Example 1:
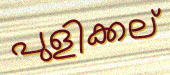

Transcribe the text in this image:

പുളിക്കല്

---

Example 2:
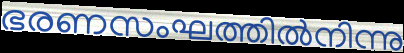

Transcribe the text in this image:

ഭരണസംഘത്തിൽനിന്നു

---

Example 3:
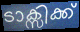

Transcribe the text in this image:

ടാക്സിക്ക്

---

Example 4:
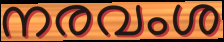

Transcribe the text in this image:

നരവംശ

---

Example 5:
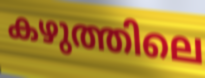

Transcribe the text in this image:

കഴുത്തിലെ